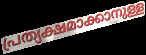
പ്രത്യക്ഷമാക്കാനുള്ള